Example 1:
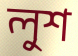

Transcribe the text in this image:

লুশ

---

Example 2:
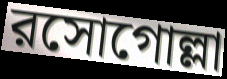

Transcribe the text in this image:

রসোগোল্লা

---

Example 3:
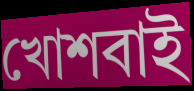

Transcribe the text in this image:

খোশবাই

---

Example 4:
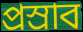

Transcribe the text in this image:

প্রস্রাব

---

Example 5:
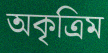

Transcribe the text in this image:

অকৃত্রিম